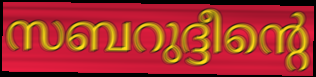
സബറുദ്ദീന്റെ